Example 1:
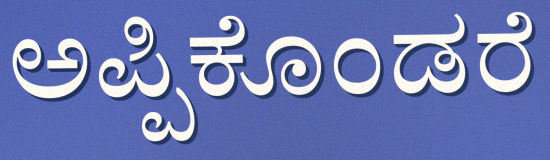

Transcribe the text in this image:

ಅಪ್ಪಿಕೊಂಡರೆ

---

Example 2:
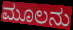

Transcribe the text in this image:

ಮೂಲನು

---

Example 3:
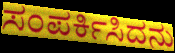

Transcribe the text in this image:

ಸಂಪರ್ಕಿಸಿದನು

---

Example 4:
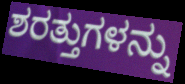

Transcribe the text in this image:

ಶರತ್ತುಗಳನ್ನು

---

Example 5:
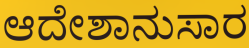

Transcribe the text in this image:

ಆದೇಶಾನುಸಾರ